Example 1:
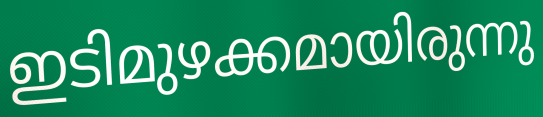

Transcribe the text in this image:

ഇടിമുഴക്കമായിരുന്നു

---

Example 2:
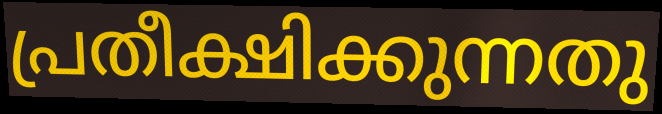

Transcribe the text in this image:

പ്രതീക്ഷിക്കുന്നതു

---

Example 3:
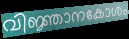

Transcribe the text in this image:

വിജ്ഞാനകോശം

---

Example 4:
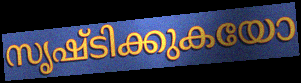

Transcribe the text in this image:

സൃഷ്ടിക്കുകയോ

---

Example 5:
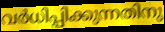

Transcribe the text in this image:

വർധിപ്പിക്കുന്നതിനു